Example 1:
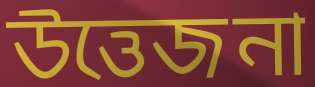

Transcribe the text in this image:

উত্তেজনা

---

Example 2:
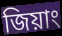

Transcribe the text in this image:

জিয়াং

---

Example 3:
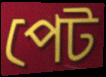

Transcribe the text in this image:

পেট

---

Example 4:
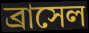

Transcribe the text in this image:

ব্রাসেল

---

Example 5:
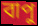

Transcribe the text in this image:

বাপু